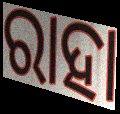
ରାହା